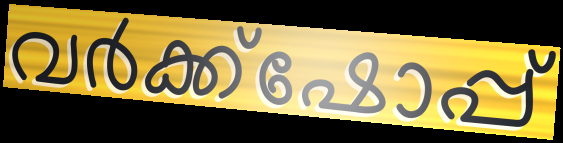
വർക്ക്ഷോപ്പ്